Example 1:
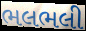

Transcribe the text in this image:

ભલભલી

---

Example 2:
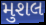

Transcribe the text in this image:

મુશલ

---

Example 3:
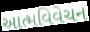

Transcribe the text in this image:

આત્મવિવેચન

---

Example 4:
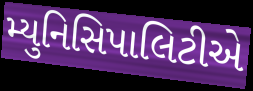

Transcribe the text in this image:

મ્યુનિસિપાલિટીએ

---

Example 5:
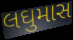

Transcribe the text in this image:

લઘુમાસ